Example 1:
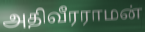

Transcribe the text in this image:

அதிவீரராமன்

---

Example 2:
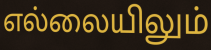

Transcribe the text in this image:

எல்லையிலும்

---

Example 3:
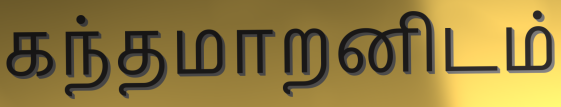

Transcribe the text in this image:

கந்தமாறனிடம்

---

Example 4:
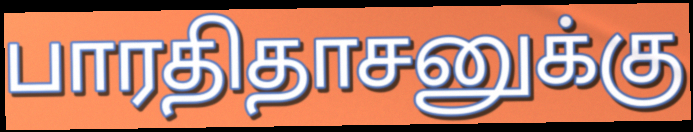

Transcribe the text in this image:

பாரதிதாசனுக்கு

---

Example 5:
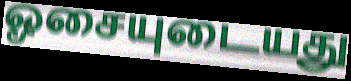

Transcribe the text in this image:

ஓசையுடையது